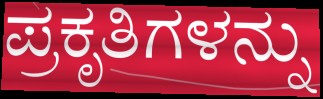
ಪ್ರಕೃತಿಗಳನ್ನು